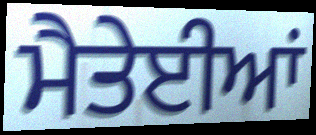
ਮੈਤੇਈਆਂ